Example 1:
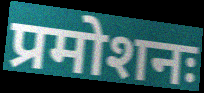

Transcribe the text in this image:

प्रमोशनः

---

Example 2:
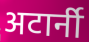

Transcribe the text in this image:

अटार्नी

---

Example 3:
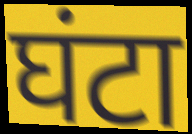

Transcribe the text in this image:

घंटा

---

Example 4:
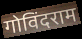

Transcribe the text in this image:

गोविंदराम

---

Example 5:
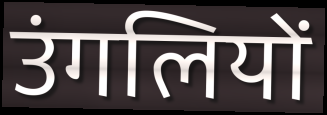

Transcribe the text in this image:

उंगलियों